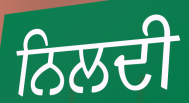
ਨਿਲਦੀ